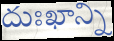
దుఃఖాన్ని